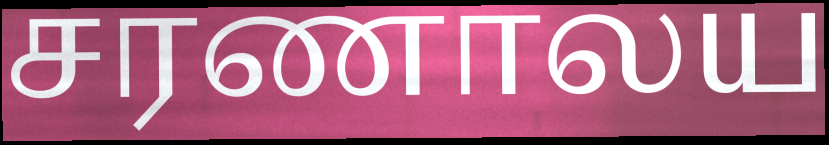
சரணாலய